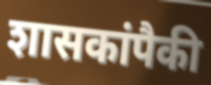
शासकांपैकी